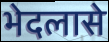
भेदलासे